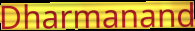
Dharmanand